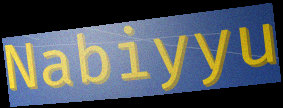
Nabiyyu